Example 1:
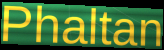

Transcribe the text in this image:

Phaltan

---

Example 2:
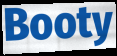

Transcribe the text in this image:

Booty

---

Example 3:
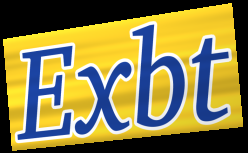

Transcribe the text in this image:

Exbt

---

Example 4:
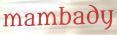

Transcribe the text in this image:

mambady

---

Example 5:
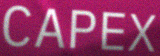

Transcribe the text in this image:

CAPEX